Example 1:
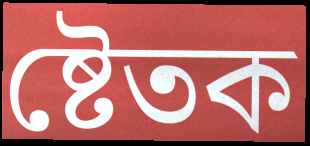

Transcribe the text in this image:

ষ্টেতক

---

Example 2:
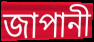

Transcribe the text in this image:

জাপানী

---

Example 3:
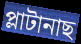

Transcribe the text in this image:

প্লাটানাছ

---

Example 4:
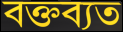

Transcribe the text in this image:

বক্তব্যত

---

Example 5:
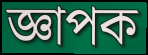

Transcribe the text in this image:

জ্ঞাপক